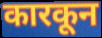
कारकून